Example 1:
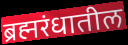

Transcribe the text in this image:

ब्रह्मरंधातील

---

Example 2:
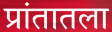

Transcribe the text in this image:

प्रांतातला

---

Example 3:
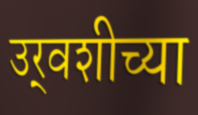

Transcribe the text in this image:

उर्वशीच्या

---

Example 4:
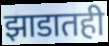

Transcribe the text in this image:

झाडातही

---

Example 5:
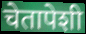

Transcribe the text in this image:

चेतापेशी